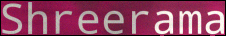
Shreerama